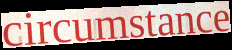
circumstance